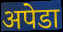
अपेडा